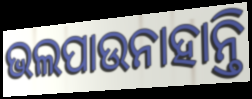
ଭଲପାଉନାହାନ୍ତି